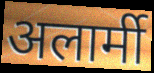
अलार्मी